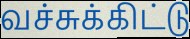
வச்சுக்கிட்டு